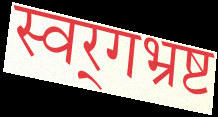
स्वर्गभ्रष्ट